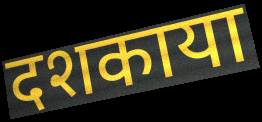
दशकाया